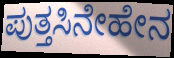
ಪುತ್ತಸಿನೇಹೇನ